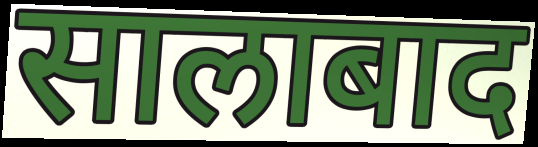
सालाबाद